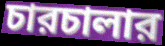
চারচালার